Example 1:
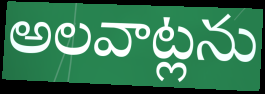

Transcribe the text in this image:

అలవాట్లను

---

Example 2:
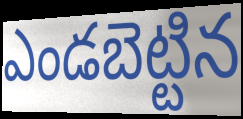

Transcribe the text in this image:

ఎండబెట్టిన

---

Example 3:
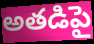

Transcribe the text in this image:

అతడిపై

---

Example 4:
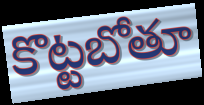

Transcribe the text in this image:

కొట్టబోతూ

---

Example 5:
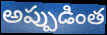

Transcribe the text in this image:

అప్పుడింత